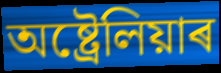
অষ্ট্ৰেলিয়াৰ